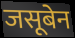
जसूबेन